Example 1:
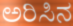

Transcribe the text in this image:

ಅರಿಸಿನ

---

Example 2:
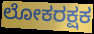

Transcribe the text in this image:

ಲೋಕರಕ್ಷಕ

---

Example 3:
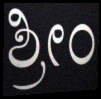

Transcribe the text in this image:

ಶ್ರೀಂ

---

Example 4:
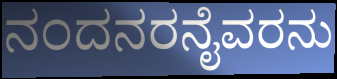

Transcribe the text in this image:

ನಂದನರನೈವರನು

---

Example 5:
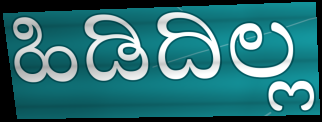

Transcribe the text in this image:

ಹಿಡಿದಿಲ್ಲ